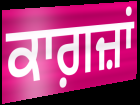
ਕਾਗ਼ਜ਼ਾਂ